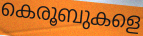
കെരൂബുകളെ